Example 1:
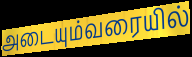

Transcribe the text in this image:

அடையும்வரையில்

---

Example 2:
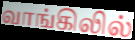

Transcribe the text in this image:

வாங்கிலில்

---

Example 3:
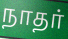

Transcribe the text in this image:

நாதர்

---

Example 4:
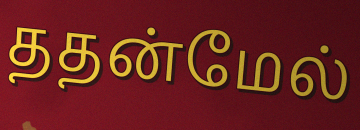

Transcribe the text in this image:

ததன்மேல்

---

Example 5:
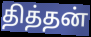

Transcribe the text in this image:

தித்தன்